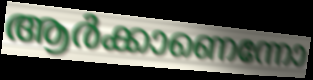
ആർക്കാണെന്നോ